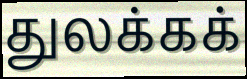
துலக்கக்